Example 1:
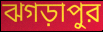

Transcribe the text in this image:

ঝগড়াপুর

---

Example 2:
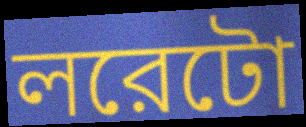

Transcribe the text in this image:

লরেটো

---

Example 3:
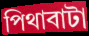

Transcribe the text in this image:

পিথাবাটা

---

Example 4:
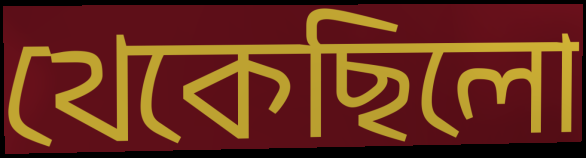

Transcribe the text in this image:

থেকেছিলো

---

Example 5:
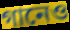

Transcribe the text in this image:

গানেও